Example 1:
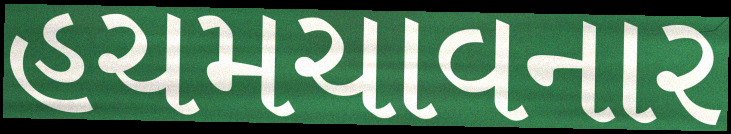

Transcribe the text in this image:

હચમચાવનાર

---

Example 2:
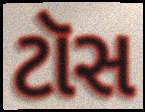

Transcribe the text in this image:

ટૉસ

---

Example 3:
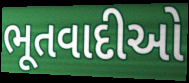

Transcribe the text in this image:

ભૂતવાદીઓ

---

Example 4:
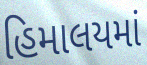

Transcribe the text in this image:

હિમાલયમાં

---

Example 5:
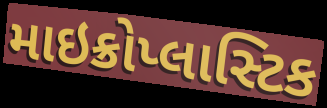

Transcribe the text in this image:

માઇક્રોપ્લાસ્ટિક